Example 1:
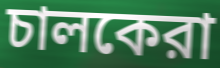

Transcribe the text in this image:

চালকেরা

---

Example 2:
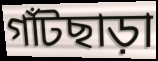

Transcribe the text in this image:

গাঁটছাড়া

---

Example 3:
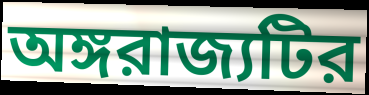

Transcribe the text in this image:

অঙ্গরাজ্যটির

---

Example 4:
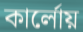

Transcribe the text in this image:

কার্লোয়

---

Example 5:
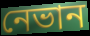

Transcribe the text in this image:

নেভান